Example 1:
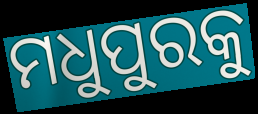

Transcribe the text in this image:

ମଧୁପୁରକୁ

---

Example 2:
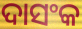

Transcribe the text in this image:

ଦାସଂକ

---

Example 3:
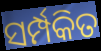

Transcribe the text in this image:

ସର୍ମ୍ପକିତ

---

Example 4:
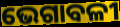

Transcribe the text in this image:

ଭେଗାବଳୀ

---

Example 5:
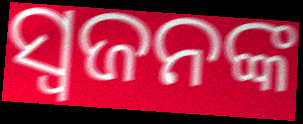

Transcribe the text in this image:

ସ୍ଵଜନଙ୍କ